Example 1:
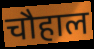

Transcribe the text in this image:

चौहाल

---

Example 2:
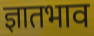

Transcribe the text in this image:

ज्ञातभाव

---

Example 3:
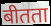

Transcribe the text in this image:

बीतता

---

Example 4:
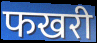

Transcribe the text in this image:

फखरी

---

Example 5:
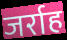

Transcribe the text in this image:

जर्राह